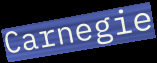
Carnegie